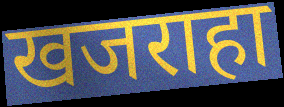
खजराहा